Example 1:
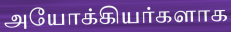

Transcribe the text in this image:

அயோக்கியர்களாக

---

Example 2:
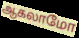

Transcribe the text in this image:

ஆகலாமோ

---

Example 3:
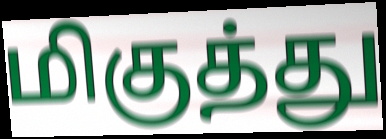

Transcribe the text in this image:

மிகுத்து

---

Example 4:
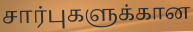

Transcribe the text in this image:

சார்புகளுக்கான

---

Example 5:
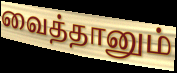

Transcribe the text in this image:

வைத்தானும்